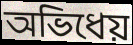
অভিধেয়